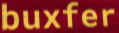
buxfer